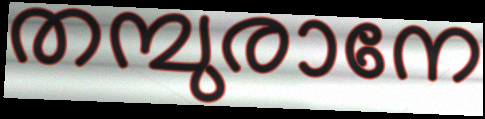
തമ്പുരാനേ